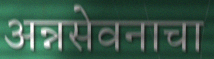
अन्नसेवनाचा